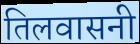
तिलवासनी